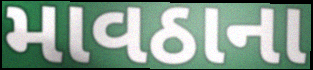
માવઠાના